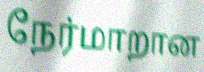
நேர்மாறான